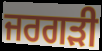
ਜਰਗੜੀ